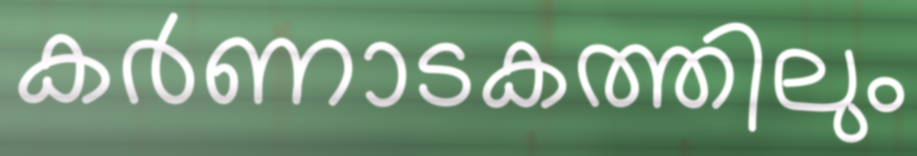
കർണാടകത്തിലും